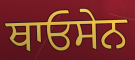
ਥਾਓਸੇਨ